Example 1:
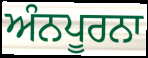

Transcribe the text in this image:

ਅੰਨਪੂਰਨਾ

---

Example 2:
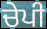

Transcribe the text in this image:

ਚੇਪੀ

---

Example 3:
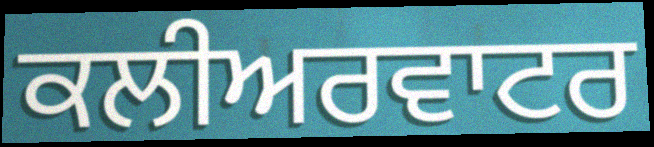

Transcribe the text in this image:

ਕਲੀਅਰਵਾਟਰ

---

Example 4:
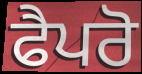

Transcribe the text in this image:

ਫੈਪਰੋ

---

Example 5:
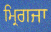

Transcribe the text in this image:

ਮ੍ਰਿਗਜਾ